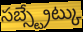
సబ్స్ట్రేట్కు